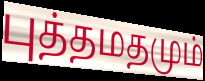
புத்தமதமும்